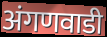
अंगणवाडी